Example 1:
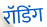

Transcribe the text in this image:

रॉडिंग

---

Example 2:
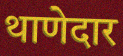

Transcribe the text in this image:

थाणेदार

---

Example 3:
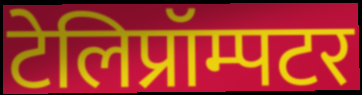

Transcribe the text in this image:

टेलिप्रॉम्पटर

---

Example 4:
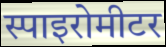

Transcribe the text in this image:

स्पाइरोमीटर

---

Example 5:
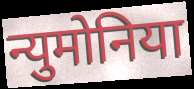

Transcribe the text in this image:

न्युमोनिया